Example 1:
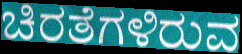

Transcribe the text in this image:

ಚಿರತೆಗಳಿರುವ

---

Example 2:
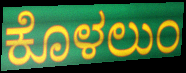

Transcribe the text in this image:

ಕೊಳಲುಂ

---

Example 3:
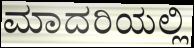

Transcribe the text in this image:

ಮಾದರಿಯಲ್ಲಿ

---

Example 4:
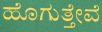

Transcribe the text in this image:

ಹೊಗುತ್ತೇವೆ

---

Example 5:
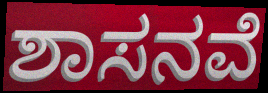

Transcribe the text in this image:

ಶಾಸನವೆ